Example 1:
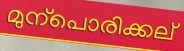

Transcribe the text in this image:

മുന്പൊരിക്കല്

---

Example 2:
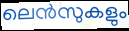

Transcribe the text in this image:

ലെൻസുകളും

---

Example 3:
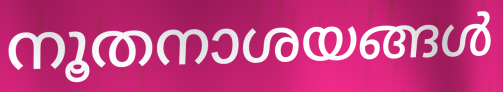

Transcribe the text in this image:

നൂതനാശയങ്ങൾ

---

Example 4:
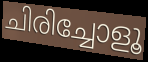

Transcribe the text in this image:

ചിരിച്ചോളൂ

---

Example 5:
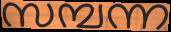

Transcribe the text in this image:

സമ്പന്ന